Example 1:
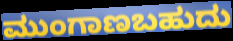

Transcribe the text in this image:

ಮುಂಗಾಣಬಹುದು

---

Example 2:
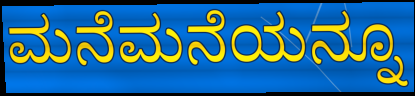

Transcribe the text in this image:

ಮನೆಮನೆಯನ್ನೂ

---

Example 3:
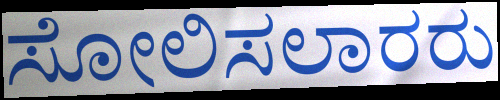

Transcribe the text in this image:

ಸೋಲಿಸಲಾರರು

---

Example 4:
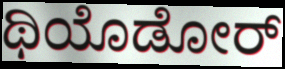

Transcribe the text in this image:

ಥಿಯೊಡೋರ್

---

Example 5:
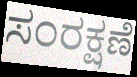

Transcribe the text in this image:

ಸಂರಕ್ಷಣೆ